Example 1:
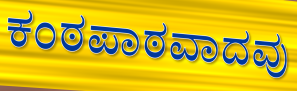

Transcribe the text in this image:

ಕಂಠಪಾಠವಾದವು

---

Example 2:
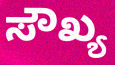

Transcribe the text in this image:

ಸೌಖ್ಯ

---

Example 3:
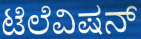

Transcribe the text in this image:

ಟೆಲೆವಿಷನ್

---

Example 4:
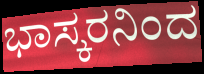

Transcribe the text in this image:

ಭಾಸ್ಕರನಿಂದ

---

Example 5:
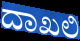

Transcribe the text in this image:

ದಾಖಲಿ